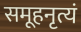
समूहनृत्यं